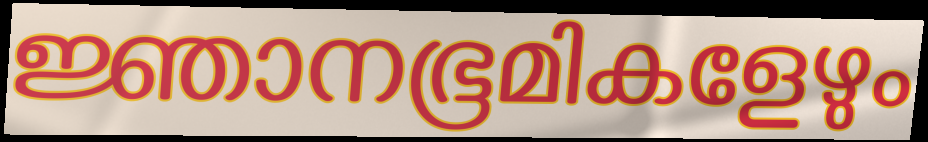
ജ്ഞാനഭൂമികളേഴും